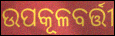
ଉପକୂଳବର୍ତ୍ତୀ